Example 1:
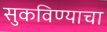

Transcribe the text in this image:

सुकविण्याचा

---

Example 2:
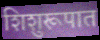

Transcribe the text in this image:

शिशुरूपात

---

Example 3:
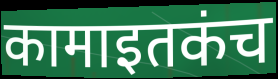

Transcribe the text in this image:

कामाइतकंच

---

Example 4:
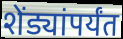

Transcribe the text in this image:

शेंड्यांपर्यंत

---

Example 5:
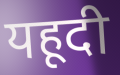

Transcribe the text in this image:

यहूदी